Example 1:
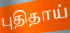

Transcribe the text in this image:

புதிதாய்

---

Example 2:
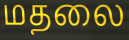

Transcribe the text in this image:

மதலை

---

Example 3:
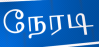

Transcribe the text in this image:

நேரடி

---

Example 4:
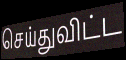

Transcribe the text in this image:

செய்துவிட்ட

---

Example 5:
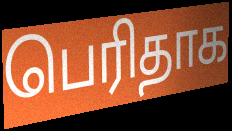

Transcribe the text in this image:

பெரிதாக